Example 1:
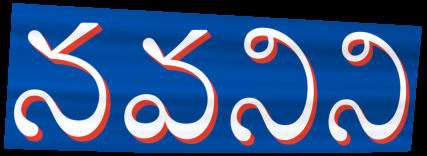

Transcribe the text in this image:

నవనిని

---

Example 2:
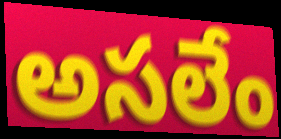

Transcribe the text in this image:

అసలేం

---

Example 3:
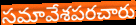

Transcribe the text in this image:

సమావేశపరచారు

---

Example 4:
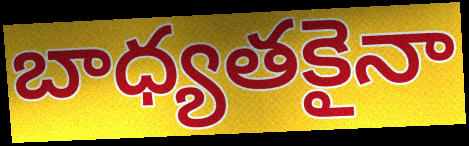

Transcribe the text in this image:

బాధ్యతకైనా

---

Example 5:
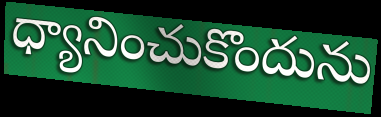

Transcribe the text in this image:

ధ్యానించుకొందును